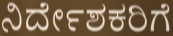
ನಿರ್ದೇಶಕರಿಗೆ